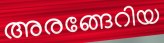
അരങ്ങേറിയ